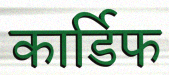
कार्डिफ